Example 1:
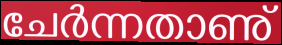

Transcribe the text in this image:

ചേർന്നതാണു്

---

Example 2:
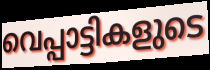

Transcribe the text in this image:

വെപ്പാട്ടികളുടെ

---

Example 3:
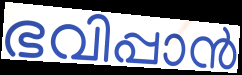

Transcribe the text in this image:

ഭവിപ്പാൻ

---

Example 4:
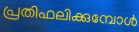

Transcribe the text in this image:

പ്രതിഫലിക്കുമ്പോൾ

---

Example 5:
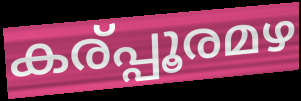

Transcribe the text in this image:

കര്പ്പൂരമഴ